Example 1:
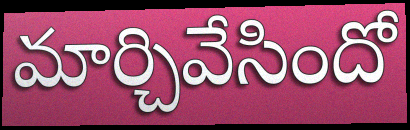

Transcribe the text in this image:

మార్చివేసిందో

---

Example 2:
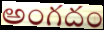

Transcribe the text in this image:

అంగదం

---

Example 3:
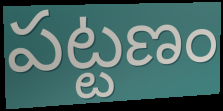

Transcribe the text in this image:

పట్టణం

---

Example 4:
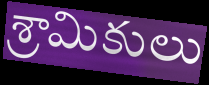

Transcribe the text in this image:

శ్రామికులు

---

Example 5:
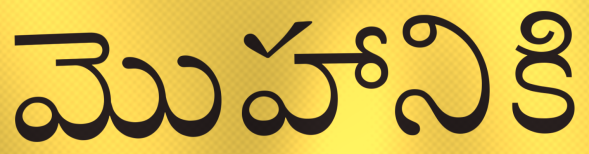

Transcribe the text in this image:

మొహానికి